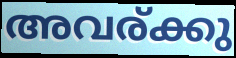
അവര്ക്കു